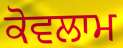
ਕੋਵਲਾਮ